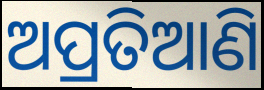
ଅପ୍ରତିଆଣି